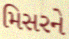
મિસરને